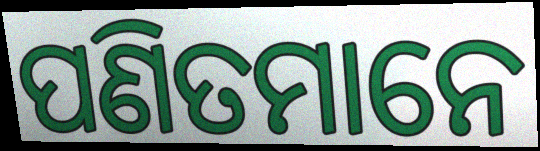
ପଣିତମାନେ